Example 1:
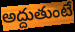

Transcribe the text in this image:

అద్దుతుంటే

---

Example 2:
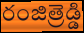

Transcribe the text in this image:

రంజిత్రెడ్డి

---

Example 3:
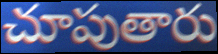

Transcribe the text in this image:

చూపుతారు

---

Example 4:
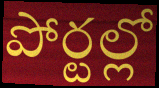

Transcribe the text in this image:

పోర్టల్లో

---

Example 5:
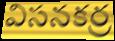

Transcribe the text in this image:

విసనకర్ర